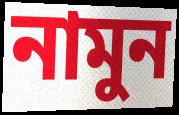
নামুন